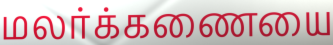
மலர்க்கணையை